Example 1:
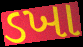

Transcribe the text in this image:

ડખા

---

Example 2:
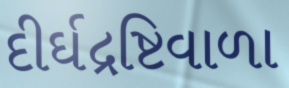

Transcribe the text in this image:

દીર્ઘદ્રષ્ટિવાળા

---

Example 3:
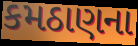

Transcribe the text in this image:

કમઠાણના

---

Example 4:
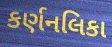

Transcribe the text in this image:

કર્ણનલિકા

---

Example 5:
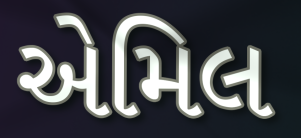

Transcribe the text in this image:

એમિલ